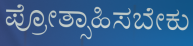
ಪ್ರೋತ್ಸಾಹಿಸಬೇಕು